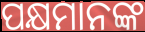
ପକ୍ଷମାନଙ୍କ